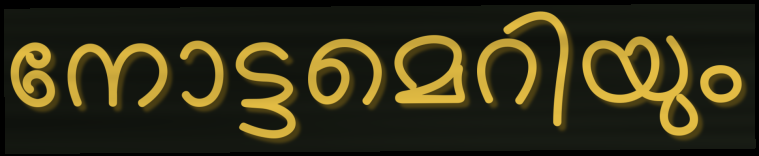
നോട്ടമെറിയും